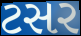
ટસર